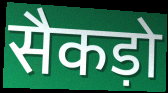
सैकड़ो